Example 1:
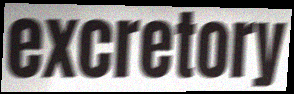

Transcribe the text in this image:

excretory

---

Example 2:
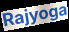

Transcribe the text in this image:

Rajyoga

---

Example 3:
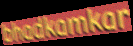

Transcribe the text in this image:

bhadkamkar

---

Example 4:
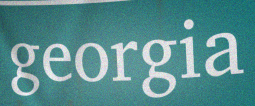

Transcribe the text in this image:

georgia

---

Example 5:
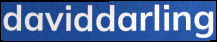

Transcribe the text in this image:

daviddarling